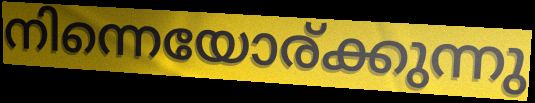
നിന്നെയോര്ക്കുന്നു